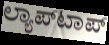
ಲ್ಯಾಪ್‌ಟಾಪ್